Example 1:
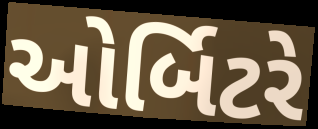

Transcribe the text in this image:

ઓર્બિટરે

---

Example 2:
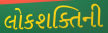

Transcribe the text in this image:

લોકશક્તિની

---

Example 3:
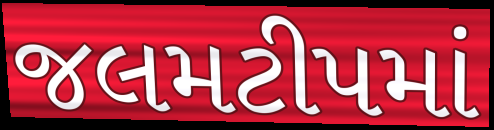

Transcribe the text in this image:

જલમટીપમાં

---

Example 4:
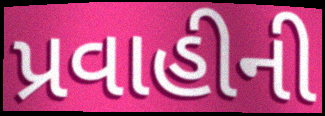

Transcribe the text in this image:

પ્રવાહીની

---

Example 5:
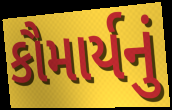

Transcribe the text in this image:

કૌમાર્યનું